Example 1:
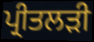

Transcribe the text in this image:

ਪ੍ਰੀਤਲੜੀ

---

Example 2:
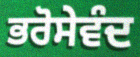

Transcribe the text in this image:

ਭਰੋਸੇਵੰਦ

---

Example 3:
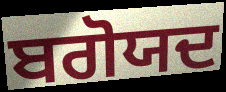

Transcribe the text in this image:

ਬਗੋਯਦ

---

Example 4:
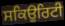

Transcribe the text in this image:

ਸਕਿਉਰਿਟੀ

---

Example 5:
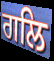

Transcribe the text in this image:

ਗਲਿ